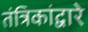
तंत्रिकांद्वारे